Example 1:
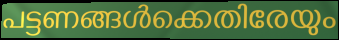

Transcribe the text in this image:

പട്ടണങ്ങൾക്കെതിരേയും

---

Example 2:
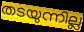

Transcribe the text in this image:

തടയുന്നില്ല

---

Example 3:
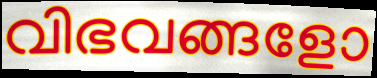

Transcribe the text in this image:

വിഭവങ്ങളോ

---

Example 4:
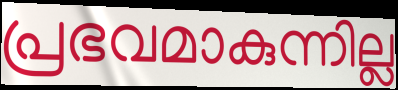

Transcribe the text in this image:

പ്രഭവമാകുന്നില്ല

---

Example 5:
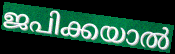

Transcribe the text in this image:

ജപിക്കയാൽ